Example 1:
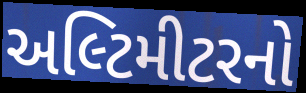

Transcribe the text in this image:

અલ્ટિમીટરનો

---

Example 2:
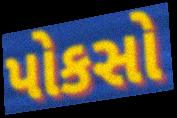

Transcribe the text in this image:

પોકસો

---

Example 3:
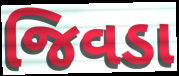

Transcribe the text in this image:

જિવડા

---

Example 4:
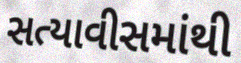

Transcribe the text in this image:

સત્યાવીસમાંથી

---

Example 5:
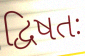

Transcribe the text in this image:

દ્વિષતઃ